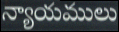
న్యాయములు